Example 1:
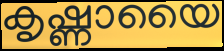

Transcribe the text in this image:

കൃഷ്ണായൈ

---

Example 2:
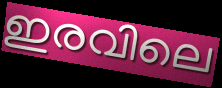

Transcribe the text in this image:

ഇരവിലെ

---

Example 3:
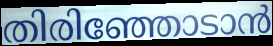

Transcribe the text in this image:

തിരിഞ്ഞോടാൻ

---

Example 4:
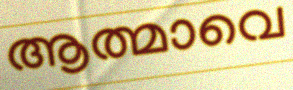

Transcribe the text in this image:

ആത്മാവെ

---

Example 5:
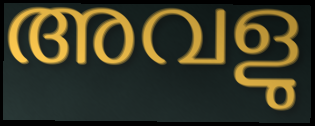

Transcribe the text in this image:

അവളു